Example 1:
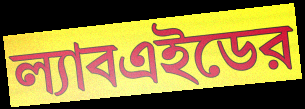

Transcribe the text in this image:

ল্যাবএইডের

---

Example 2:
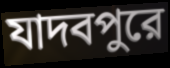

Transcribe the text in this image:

যাদবপুরে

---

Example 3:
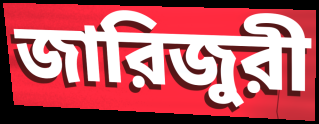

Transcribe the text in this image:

জারিজুরী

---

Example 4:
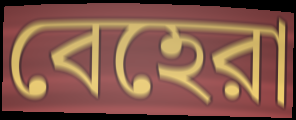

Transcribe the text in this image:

বেহেরা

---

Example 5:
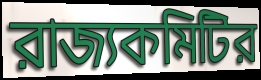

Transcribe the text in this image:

রাজ্যকমিটির